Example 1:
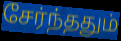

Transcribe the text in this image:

சேர்ந்ததும்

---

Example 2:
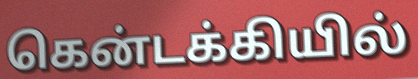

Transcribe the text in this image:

கென்டக்கியில்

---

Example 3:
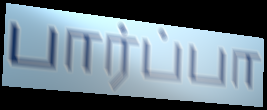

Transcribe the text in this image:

பார்ப்பா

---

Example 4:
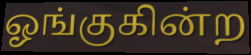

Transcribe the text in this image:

ஓங்குகின்ற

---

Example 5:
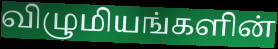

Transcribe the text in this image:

விழுமியங்களின்